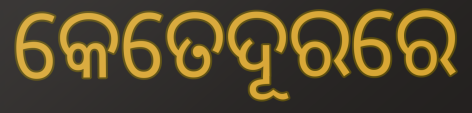
କେତେଦୂରରେ